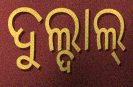
ଦୁଲ୍ଦାଲ୍